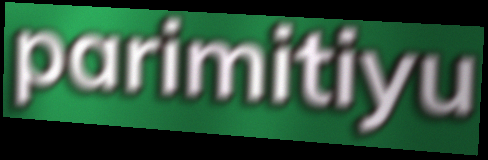
parimitiyu